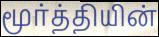
மூர்த்தியின்